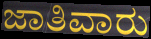
ಜಾತಿವಾರು